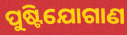
ପୁଷ୍ଟିଯୋଗାଣ